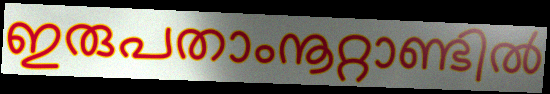
ഇരുപതാംനൂറ്റാണ്ടിൽ